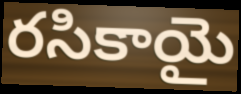
రసికాయై